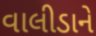
વાલીડાને